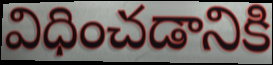
విధించడానికి